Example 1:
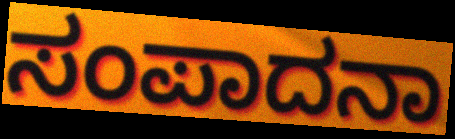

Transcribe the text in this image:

ಸಂಪಾದನಾ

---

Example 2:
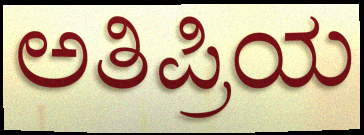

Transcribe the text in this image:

ಅತಿಪ್ರಿಯ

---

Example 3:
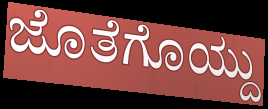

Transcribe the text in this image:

ಜೊತೆಗೊಯ್ದು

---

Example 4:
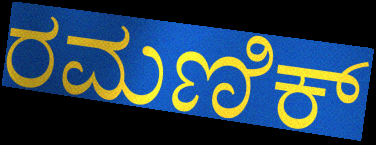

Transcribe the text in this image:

ರಮಣಿಕ್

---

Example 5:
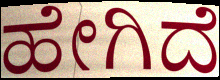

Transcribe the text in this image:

ಹೇಗಿದೆ